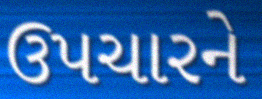
ઉપચારને